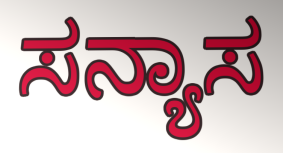
ಸನ್ಯಾಸ